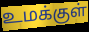
உமக்குள்